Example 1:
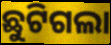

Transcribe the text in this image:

ଛୁଟିଗଲା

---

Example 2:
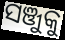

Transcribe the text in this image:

ସଞ୍ଜୁକୁ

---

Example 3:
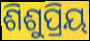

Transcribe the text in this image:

ଶିଶୁପ୍ରିୟ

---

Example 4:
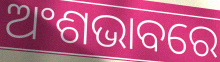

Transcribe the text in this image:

ଅଂଶଭାବରେ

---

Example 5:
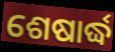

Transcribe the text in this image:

ଶେଷାର୍ଦ୍ଧ